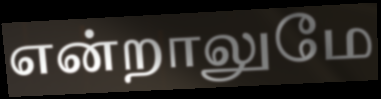
என்றாலுமே